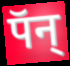
पॅन्